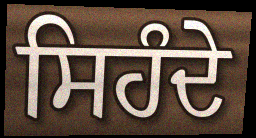
ਸਿਹੰਦੇ